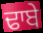
ਢਾਬੇ